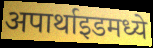
अपार्थाइडमध्ये